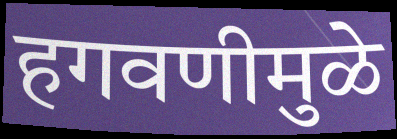
हगवणीमुळे